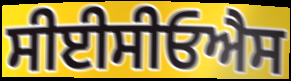
ਸੀਈਸੀਓਐਸ